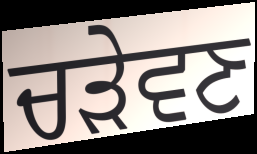
ਚੜੇਵਣ